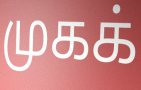
முகக்